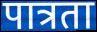
पात्रता